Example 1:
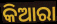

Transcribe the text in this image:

କିଆରା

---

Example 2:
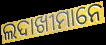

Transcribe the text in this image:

ଲଦାଖୀମାନେ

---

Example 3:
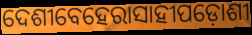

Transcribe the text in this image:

ଦେଶୀବେହେରାସାହୀପଡ଼ୋଶୀ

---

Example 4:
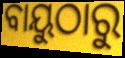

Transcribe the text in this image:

ବାୟୁଠାରୁ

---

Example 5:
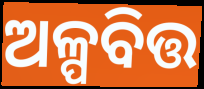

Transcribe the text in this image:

ଅଳ୍ପବିତ୍ତ